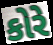
કોરે